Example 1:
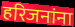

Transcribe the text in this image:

हरिजनांना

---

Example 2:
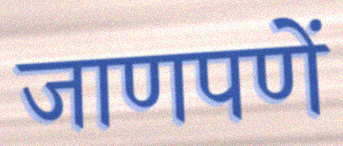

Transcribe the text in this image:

जाणपणें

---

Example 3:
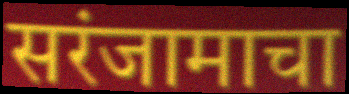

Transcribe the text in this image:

सरंजामाचा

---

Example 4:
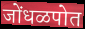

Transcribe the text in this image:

जोंधळपोत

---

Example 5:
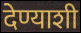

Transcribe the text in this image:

देण्याशी